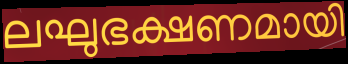
ലഘുഭക്ഷണമായി